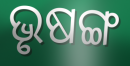
ଭୃଷଙ୍ଗ